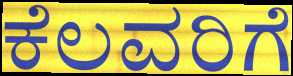
ಕೆಲವರಿಗೆ